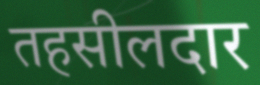
तहसीलदार